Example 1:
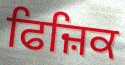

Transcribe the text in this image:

ਫਿਜ਼ਿਕ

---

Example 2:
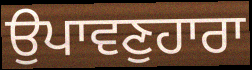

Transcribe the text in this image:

ਉਪਾਵਣੁਹਾਰਾ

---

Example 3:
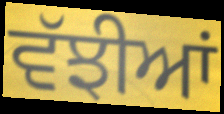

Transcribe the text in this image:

ਵੱਝੀਆਂ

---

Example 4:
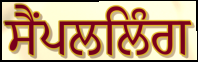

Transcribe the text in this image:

ਸੈਂਪਲਲਿੰਗ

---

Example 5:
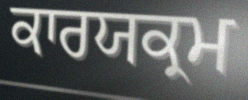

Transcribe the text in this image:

ਕਾਰਯਕ੍ਰਮ